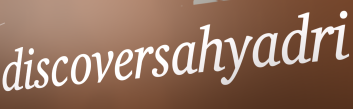
discoversahyadri